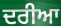
ਦਰੀਆ